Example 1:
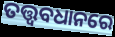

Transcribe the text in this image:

ତତ୍ତ୍ଵବଧାନରେ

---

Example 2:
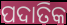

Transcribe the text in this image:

ପଦାତିକ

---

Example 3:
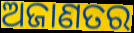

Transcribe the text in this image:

ଅଜାଣତର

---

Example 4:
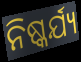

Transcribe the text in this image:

ନିଷ୍କର୍ଯ୍ୟ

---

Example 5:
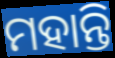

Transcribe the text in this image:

ମହାନ୍ତି